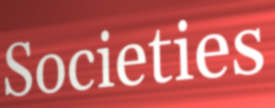
Societies